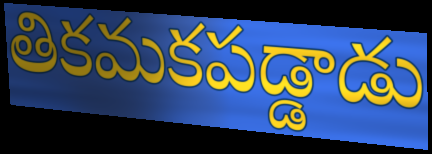
తికమకపడ్డాడు